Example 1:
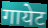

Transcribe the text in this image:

गायेट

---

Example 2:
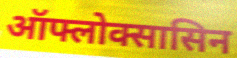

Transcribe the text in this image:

ऑफ्लोक्सासिन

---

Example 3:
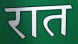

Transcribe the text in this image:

रात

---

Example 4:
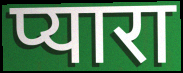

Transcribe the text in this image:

प्यारा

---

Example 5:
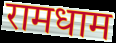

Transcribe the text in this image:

रामधाम